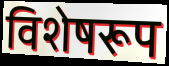
विशेषरूप